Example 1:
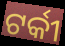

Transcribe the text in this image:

ଟର୍କୀ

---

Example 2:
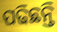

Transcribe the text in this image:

ପଢିଛନ୍ତି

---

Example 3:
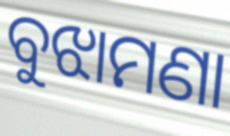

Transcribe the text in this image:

ବୁଝାମଣା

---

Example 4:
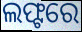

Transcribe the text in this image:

ଲଫ୍ଟରେ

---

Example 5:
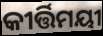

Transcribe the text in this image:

କୀର୍ତ୍ତିମୟୀ